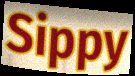
Sippy